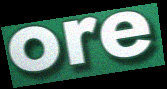
ore